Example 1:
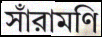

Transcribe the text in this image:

সাঁরামণি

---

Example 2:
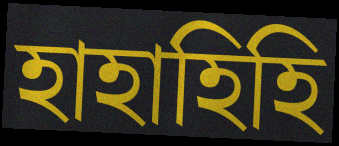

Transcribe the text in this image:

হাহাহিহি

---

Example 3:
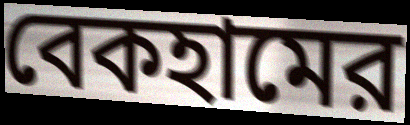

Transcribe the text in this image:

বেকহামের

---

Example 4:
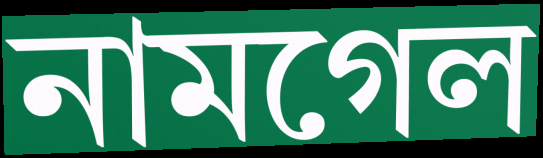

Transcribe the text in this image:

নামগেল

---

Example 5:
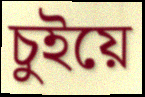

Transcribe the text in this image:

চুইয়ে